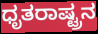
ಧೃತರಾಷ್ಟ್ರನ